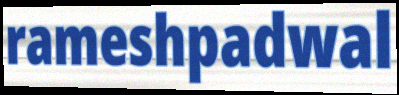
rameshpadwal